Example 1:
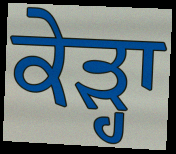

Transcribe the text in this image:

ਕੇੜ੍ਹਾ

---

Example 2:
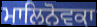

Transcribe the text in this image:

ਮਾਲਿਨੋਵਕਾ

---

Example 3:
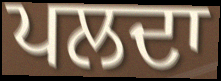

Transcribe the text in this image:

ਪਲਦਾ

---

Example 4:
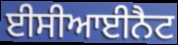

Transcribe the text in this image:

ਈਸੀਆਈਨੈਟ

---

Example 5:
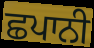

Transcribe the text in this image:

ਛਪਾਨੀ